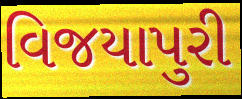
વિજયાપુરી